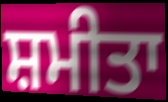
ਸ਼ਮੀਤਾ